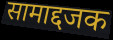
सामाद्दजक